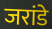
जरांडे